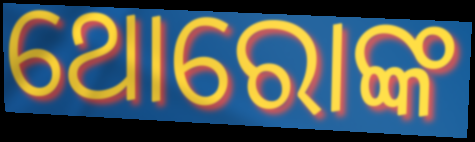
ଥୋରୋଙ୍କ